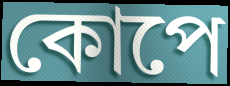
কোপে